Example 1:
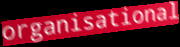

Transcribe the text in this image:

organisational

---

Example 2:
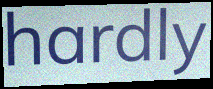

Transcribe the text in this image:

hardly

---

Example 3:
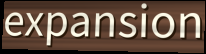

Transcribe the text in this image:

expansion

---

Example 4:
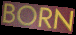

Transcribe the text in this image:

BORN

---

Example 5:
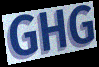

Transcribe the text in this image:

GHG